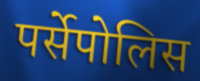
पर्सेपोलिस